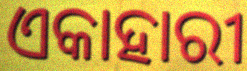
ଏକାହାରୀ